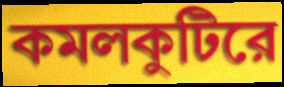
কমলকুটিরে